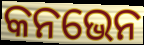
କନଭେନ